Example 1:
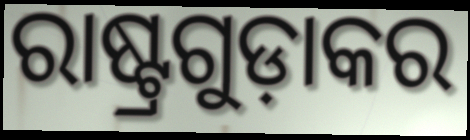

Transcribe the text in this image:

ରାଷ୍ଟ୍ରଗୁଡ଼ାକର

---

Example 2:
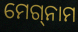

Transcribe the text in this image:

ମେଗ୍‌ନାମ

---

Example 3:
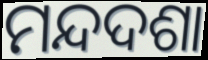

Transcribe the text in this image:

ମନ୍ଦଦଶା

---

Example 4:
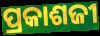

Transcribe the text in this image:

ପ୍ରକାଶଜୀ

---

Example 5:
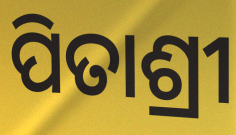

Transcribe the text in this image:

ପିତାଶ୍ରୀ